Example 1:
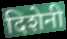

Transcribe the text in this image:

दिशेनी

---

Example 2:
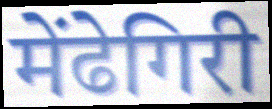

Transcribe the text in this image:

मेंढेगिरी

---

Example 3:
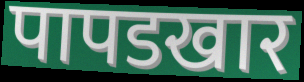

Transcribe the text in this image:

पापडखार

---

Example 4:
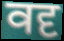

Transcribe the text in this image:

वदृ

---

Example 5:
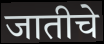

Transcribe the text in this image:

जातीचे